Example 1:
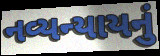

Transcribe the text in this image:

નવ્યન્યાયનું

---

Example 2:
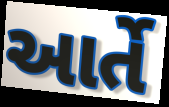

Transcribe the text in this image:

આર્તે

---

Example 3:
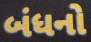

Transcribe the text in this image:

બંધનો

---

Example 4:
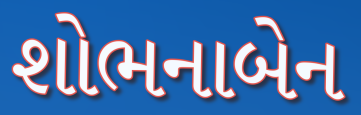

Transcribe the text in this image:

શોભનાબેન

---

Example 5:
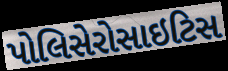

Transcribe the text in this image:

પોલિસેરોસાઇટિસ